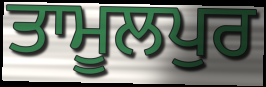
ਤਾਮੂਲਪੁਰ